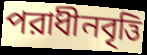
পরাধীনবৃত্তি